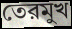
তেরমুখ